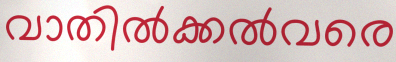
വാതിൽക്കൽവരെ